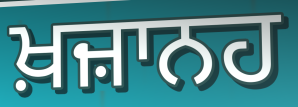
ਖ਼ਜ਼ਾਨਹ